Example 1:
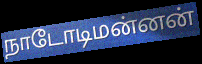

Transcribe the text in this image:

நாடோடிமன்னன்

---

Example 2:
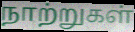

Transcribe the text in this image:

நாற்றுகள்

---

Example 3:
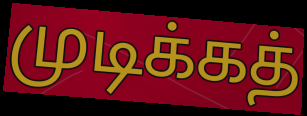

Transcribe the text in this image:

முடிக்கத்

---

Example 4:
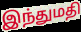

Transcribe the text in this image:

இந்துமதி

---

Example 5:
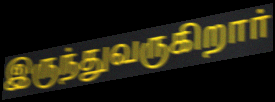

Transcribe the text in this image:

இருந்துவருகிறார்